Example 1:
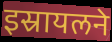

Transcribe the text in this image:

इस्रायलने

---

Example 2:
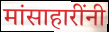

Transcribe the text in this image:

मांसाहारींनी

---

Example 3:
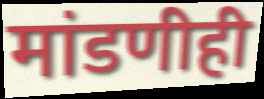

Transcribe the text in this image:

मांडणीही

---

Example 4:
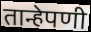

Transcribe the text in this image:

तान्हेपणी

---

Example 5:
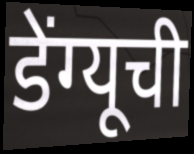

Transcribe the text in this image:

डेंग्यूची